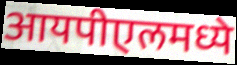
आयपीएलमध्ये